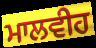
ਮਾਲਵੀਹ